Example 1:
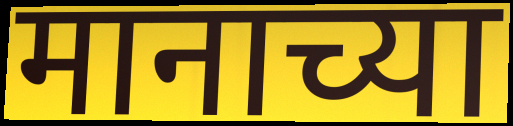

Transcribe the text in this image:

मानाच्या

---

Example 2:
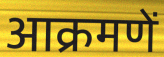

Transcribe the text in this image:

आक्रमणें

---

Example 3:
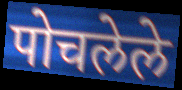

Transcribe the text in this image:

पोचलेले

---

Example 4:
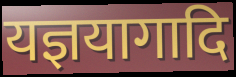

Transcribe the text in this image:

यज्ञयागादि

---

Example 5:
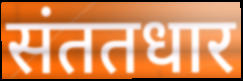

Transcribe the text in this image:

संततधार